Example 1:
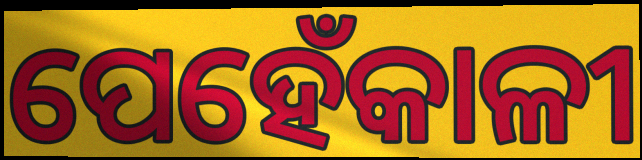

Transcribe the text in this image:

ପେହେଁକାଳୀ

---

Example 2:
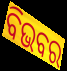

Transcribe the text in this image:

ବିଭବର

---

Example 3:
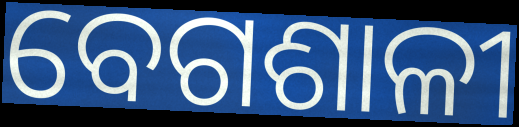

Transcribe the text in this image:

ବେଗଶାଳୀ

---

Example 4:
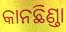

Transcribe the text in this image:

କାନଛିଣ୍ଡା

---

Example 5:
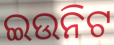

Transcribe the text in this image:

ଇଉନିଟ